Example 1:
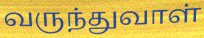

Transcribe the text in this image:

வருந்துவாள்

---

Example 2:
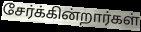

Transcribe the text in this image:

சேர்க்கின்றார்கள்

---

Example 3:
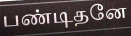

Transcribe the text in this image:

பண்டிதனே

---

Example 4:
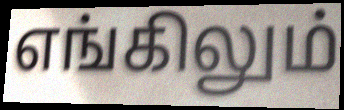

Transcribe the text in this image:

எங்கிலும்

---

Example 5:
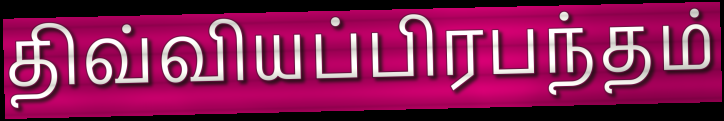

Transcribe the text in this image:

திவ்வியப்பிரபந்தம்